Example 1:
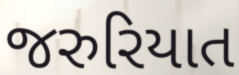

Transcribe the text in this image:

જરુરિયાત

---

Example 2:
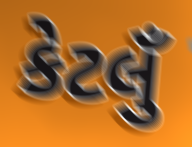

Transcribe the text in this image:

કેટલુઁ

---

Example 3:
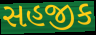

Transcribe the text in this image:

સહજીક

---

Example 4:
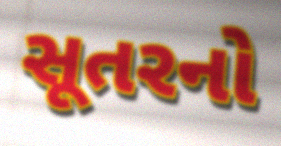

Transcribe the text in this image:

સૂતરનો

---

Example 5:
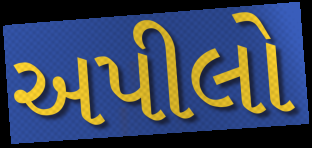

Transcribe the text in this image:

અપીલો